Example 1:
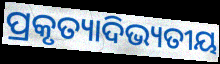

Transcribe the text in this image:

ପ୍ରକୃତ୍ୟାଦିଭ୍ୟତୀୟ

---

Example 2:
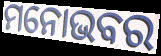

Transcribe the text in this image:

ମନୋଭବର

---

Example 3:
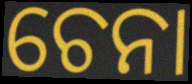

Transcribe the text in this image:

ଚେନା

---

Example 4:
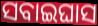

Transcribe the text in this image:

ସବାଇଘାସ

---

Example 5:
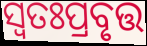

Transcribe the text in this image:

ସ୍ୱତଃପ୍ରବୃତ୍ତ